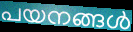
പയനങ്ങൾ